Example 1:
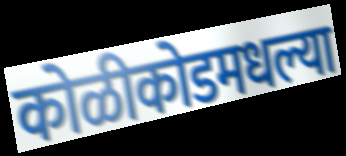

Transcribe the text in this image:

कोळीकोडमधल्या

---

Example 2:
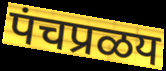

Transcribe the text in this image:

पंचप्रळय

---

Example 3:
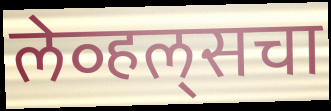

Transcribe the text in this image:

लेव्हल्सचा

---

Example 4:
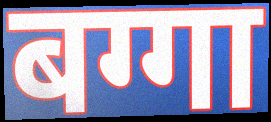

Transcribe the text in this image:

बग्गा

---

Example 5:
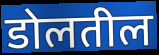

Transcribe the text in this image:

डोलतील